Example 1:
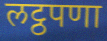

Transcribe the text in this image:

लट्ठपणा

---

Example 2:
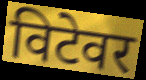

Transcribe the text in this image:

विटेवर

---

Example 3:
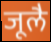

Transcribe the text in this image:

जूलै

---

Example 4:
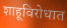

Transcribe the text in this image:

शाहूविरोधात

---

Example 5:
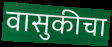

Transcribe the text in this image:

वासुकीचा